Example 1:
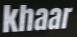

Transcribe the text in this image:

khaar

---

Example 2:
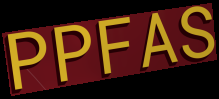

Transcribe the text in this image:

PPFAS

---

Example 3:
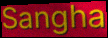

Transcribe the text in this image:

Sangha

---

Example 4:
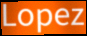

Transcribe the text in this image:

Lopez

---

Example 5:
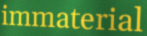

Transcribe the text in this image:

immaterial